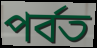
পৰ্বত